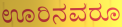
ಊರಿನವರೂ